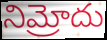
నిమ్రోదు